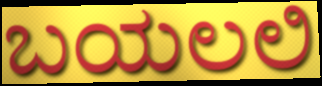
ಬಯಲಲಿ